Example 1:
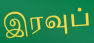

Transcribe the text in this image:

இரவுப்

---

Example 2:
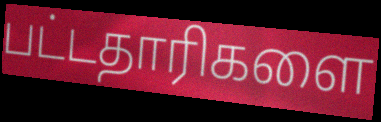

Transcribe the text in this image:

பட்டதாரிகளை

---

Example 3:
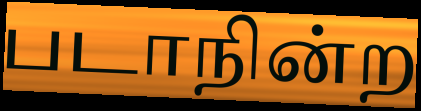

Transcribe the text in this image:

படாநின்ற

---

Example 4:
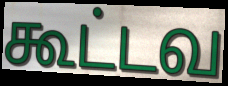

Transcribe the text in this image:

கூட்டவ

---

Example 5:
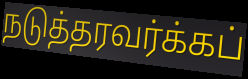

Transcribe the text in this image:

நடுத்தரவர்க்கப்